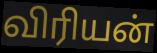
விரியன்